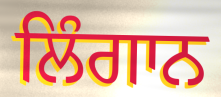
ਲਿੰਗਾਨ